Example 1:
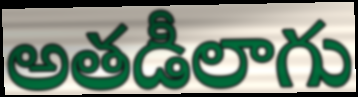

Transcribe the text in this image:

అతడీలాగు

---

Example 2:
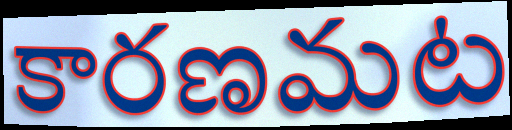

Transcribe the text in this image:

కారణమట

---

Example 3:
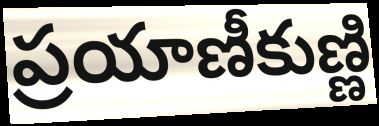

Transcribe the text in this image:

ప్రయాణీకుణ్ణి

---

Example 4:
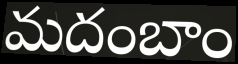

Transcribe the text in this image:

మదంబాం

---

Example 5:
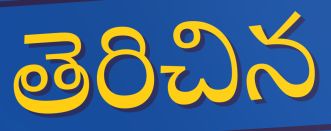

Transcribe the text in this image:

తెరిచిన